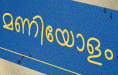
മണിയോളം